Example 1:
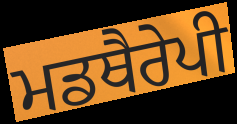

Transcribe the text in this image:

ਮਡਥੈਰੇਪੀ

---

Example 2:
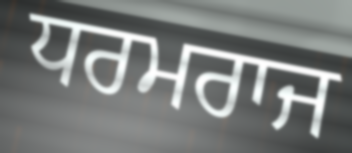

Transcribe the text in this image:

ਧਰਮਰਾਜ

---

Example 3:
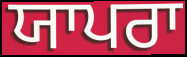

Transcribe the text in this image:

ਯਾਪਰਾ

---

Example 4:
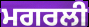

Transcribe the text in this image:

ਮਗਰਲੀ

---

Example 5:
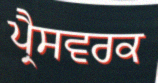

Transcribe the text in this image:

ਪ੍ਰੈਸਵਰਕ